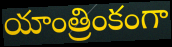
యాంత్రింకంగా